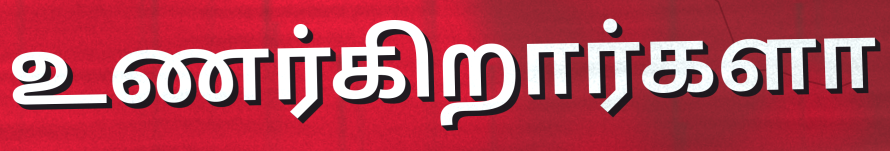
உணர்கிறார்களா